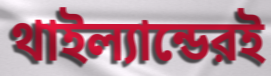
থাইল্যান্ডেরই